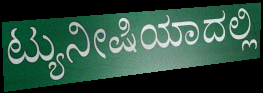
ಟ್ಯುನೀಷಿಯಾದಲ್ಲಿ